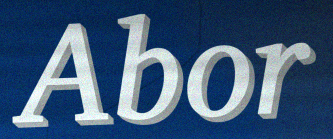
Abor